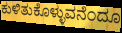
ಕುಳಿತುಕೊಳ್ಳುವನೆಂದೂ